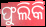
ଫୁଲିକି